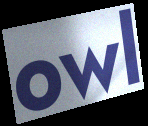
owl